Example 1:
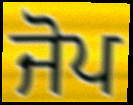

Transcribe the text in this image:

ਜੋਪ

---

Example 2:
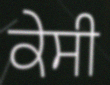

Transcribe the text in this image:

ਕੇਸੀ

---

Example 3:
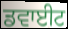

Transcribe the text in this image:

ਡਵਾਈਟ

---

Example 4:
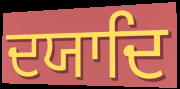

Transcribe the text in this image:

ਦਯਾਦਿ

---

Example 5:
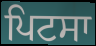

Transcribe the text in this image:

ਪਿਟਸਾ